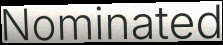
Nominated